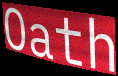
Oath